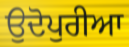
ਉਦੋਪੁਰੀਆ